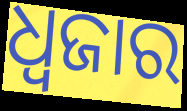
ଧ୍ୱଜାର